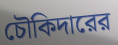
চৌকিদারের